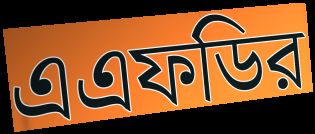
এএফডির